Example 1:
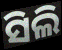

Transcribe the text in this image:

ସିଲି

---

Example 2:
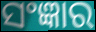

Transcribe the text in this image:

ସଂଜ୍ଞାର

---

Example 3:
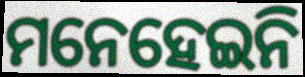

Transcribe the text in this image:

ମନେହେଇନି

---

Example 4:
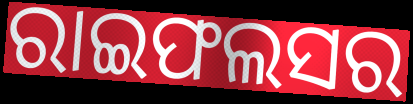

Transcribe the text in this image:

ରାଇଫଲସର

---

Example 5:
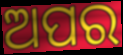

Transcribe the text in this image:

ଅପର